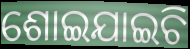
ଶୋଇଯାଇଚି